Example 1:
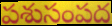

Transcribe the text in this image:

పశుసంపద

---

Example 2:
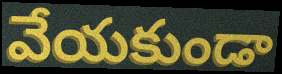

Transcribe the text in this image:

వేయకుండా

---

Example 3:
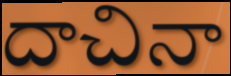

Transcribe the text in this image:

దాచినా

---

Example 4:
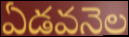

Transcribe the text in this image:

ఏడవనెల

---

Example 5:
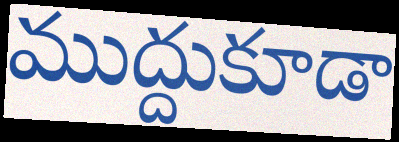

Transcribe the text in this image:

ముద్దుకూడా